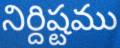
నిర్దిష్టము